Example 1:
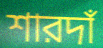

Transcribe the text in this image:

শারদাঁ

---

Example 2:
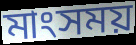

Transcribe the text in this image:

মাংসময়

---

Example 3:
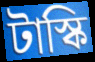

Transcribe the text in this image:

টাস্কি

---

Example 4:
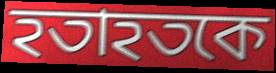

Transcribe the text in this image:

হতাহতকে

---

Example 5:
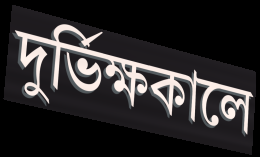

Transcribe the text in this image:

দুর্ভিক্ষকালে